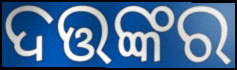
ଦତ୍ତଙ୍କର